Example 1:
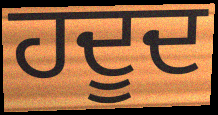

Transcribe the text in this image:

ਹਦੂਦ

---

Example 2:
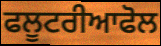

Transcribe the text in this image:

ਫਲੂਟਰੀਆਫੋਲ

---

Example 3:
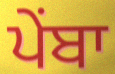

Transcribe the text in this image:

ਪੇਂਬਾ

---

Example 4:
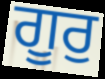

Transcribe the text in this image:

ਗੂਰੁ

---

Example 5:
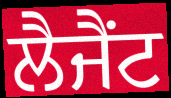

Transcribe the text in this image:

ਲੈਜੈਂਟ